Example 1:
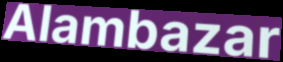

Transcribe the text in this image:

Alambazar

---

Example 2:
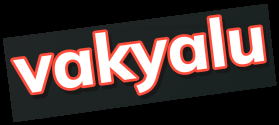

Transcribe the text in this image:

vakyalu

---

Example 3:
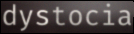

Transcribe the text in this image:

dystocia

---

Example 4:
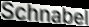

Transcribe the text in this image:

Schnabel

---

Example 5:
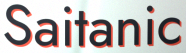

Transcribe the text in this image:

Saitanic